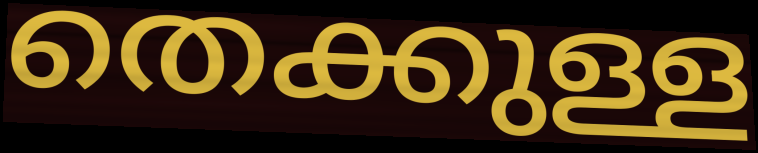
തെക്കുള്ള